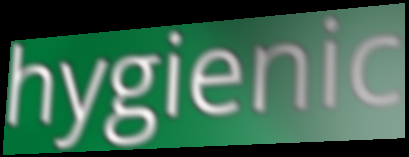
hygienic